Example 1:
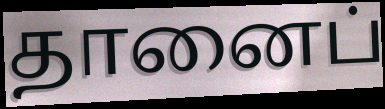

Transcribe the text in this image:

தானைப்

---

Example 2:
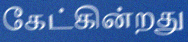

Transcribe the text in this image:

கேட்கின்றது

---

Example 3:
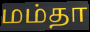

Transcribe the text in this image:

மம்தா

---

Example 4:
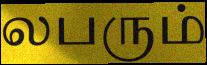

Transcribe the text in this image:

லபரும்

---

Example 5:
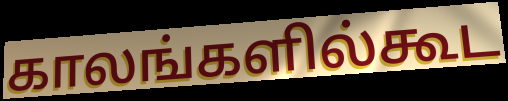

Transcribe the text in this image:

காலங்களில்கூட